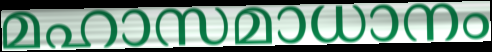
മഹാസമാധാനം